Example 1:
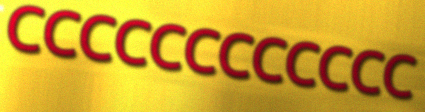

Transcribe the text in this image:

CCCCCCCCCCCC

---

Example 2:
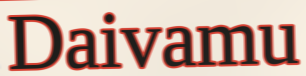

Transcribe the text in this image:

Daivamu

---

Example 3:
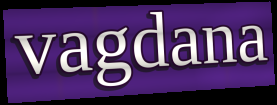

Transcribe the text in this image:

vagdana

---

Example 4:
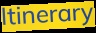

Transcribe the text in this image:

Itinerary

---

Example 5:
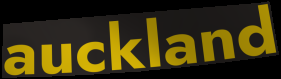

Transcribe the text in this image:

auckland